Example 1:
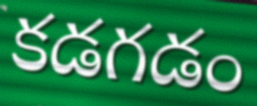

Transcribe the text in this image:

కడగడం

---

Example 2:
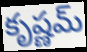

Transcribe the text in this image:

కృష్ణమ్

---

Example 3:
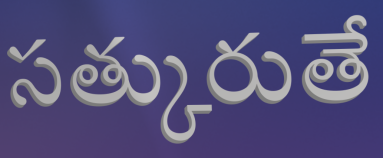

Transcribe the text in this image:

సత్కురుతే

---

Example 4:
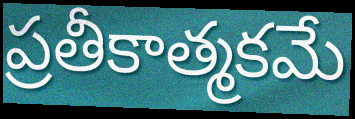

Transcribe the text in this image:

ప్రతీకాత్మకమే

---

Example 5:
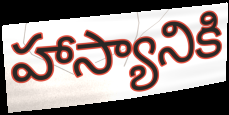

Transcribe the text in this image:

హాస్యానికి